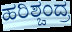
ಹರಿಶ್ಚಂದ್ರ